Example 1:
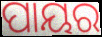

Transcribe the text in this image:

ପାୟର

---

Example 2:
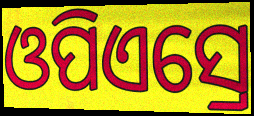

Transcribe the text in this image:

ଓପିଏସ୍ରେ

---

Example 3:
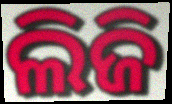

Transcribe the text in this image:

ଲିଜି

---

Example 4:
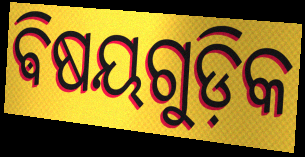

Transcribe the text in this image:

ଵିଷୟଗୁଡ଼ିକ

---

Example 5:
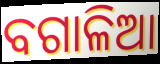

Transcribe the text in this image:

ବଗାଳିଆ